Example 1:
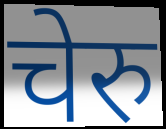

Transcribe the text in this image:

चेरु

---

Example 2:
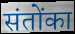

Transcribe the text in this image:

संतोंका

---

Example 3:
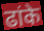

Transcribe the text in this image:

ढांके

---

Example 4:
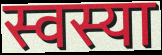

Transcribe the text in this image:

स्वस्या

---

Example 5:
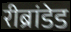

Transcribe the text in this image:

रीब्रांडेड